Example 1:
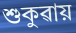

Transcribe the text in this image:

শুকুৱায়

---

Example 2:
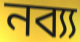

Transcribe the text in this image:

নব্য্য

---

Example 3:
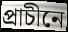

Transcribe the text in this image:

প্ৰাচীনে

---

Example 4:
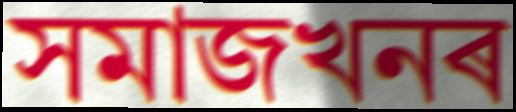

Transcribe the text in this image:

সমাজখনৰ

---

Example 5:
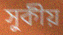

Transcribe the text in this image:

সুকীয়